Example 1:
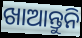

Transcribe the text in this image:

ଖାଆନ୍ତୁନି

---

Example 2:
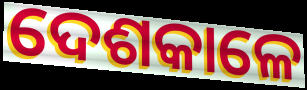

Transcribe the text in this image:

ଦେଶକାଳେ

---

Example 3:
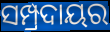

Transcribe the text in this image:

ସମ୍ପ୍ରଦାୟର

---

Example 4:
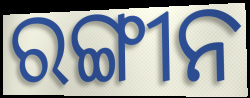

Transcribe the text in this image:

ରଙ୍ଗୀନ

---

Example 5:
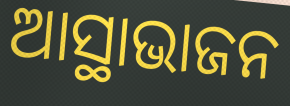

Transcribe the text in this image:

ଆସ୍ଥାଭାଜନ